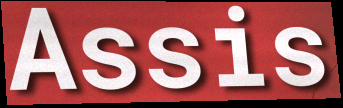
Assis